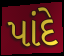
પાંદે